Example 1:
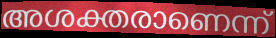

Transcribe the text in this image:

അശക്തരാണെന്ന്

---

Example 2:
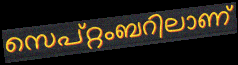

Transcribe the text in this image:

സെപ്റ്റംബറിലാണ്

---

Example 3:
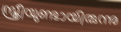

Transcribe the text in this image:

സ്ത്രീയുണ്ടായിരുന്നു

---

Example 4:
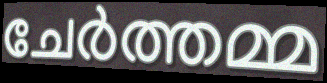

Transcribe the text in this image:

ചേർത്തമ്മ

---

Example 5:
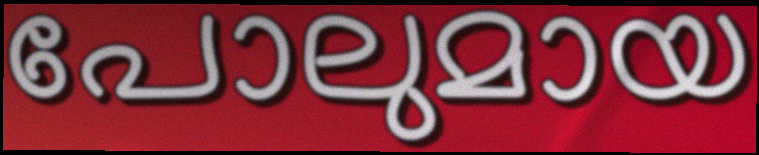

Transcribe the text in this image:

പോലുമായ